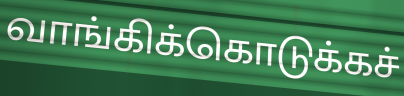
வாங்கிக்கொடுக்கச்